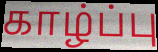
காழ்ப்பு